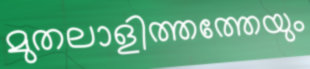
മുതലാളിത്തത്തേയും